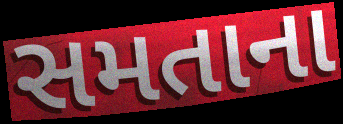
સમતાના